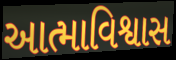
આત્માવિશ્વાસ